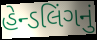
હેન્ડલિંગનું